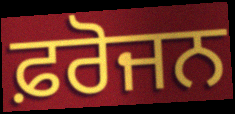
ਫ਼ਰੋਜਨ